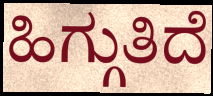
ಹಿಗ್ಗುತಿದೆ